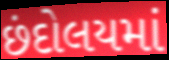
છંદોલયમાં